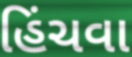
હિંચવા